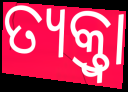
ତ୍ୟକ୍ତ୍ୱା